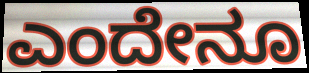
ಎಂದೇನೂ